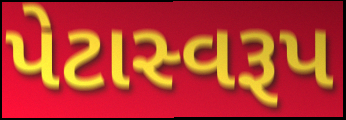
પેટાસ્વરૂપ